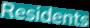
Residents